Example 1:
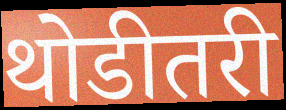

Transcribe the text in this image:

थोडीतरी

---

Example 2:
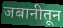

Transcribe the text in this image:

जबानीतून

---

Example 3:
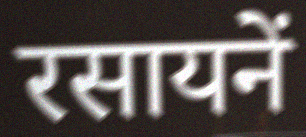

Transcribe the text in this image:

रसायनें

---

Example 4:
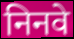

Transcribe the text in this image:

निनवे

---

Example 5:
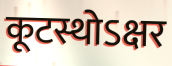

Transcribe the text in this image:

कूटस्थोऽक्षर